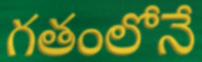
గతంలోనే